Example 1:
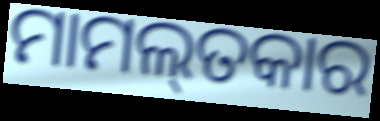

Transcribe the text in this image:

ମାମଲ୍‌ତକାର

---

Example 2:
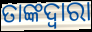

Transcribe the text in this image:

ତାଙ୍କଦ୍ୱାରା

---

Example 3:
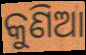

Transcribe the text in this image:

କୁଣିଆ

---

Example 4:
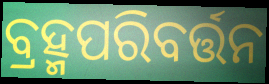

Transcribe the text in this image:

ବ୍ରହ୍ମପରିବର୍ତ୍ତନ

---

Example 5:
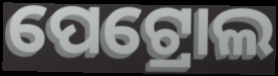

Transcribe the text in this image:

ପେଟ୍ରୋଲ